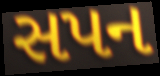
સપન